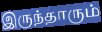
இருந்தாரும்